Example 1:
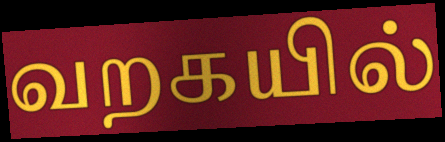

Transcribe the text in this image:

வறகயில்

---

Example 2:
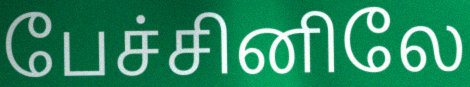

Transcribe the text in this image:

பேச்சினிலே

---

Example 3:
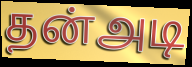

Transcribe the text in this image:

தன்அடி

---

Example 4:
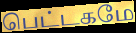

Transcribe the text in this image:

பெட்டகமே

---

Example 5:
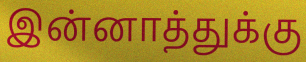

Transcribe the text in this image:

இன்னாத்துக்கு